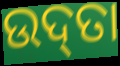
ଉଦ୍‌ତା